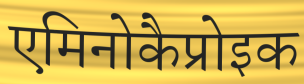
एमिनोकैप्रोइक